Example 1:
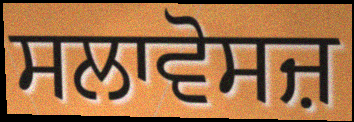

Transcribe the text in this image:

ਸਲਾਵੋਸਜ਼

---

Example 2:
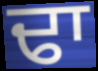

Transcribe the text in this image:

ਢਾ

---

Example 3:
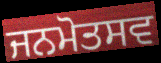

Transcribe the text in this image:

ਜਨਮੋਤਸਵ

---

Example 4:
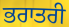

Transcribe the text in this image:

ਭਰਾਤਰੀ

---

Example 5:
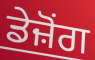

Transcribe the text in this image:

ਡੇਜ਼ੋਂਗ